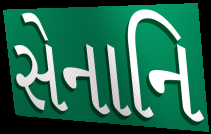
સેનાનિ